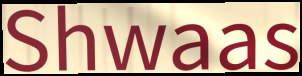
Shwaas